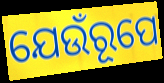
ଯେଉଁରୂପେ